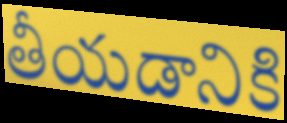
తీయడానికి